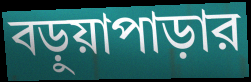
বড়ুয়াপাড়ার